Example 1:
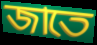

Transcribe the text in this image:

জাতে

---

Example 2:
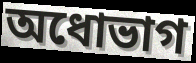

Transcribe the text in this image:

অধোভাগ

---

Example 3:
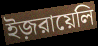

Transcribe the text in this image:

ইজ়রায়েলি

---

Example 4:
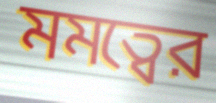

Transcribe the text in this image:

মমত্বের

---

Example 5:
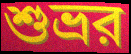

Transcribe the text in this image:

শুভ্রর